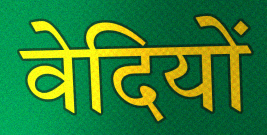
वेदियों